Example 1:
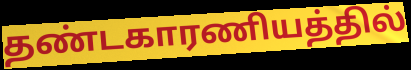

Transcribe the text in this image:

தண்டகாரணியத்தில்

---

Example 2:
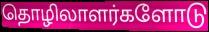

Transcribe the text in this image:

தொழிலாளர்களோடு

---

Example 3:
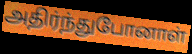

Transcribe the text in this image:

அதிர்ந்துபோனாள்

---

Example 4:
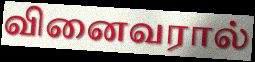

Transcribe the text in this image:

வினைவரால்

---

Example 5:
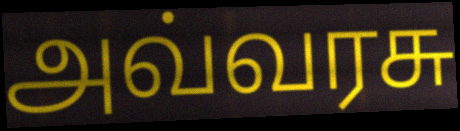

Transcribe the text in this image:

அவ்வரசு